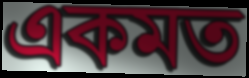
একমত